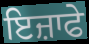
ਇਜ਼ਾਫੇ